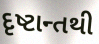
દૃષ્ટાન્તથી